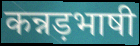
कन्नड़भाषी